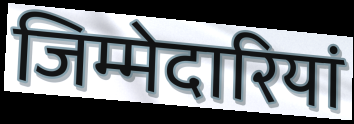
जिम्मेदारियां